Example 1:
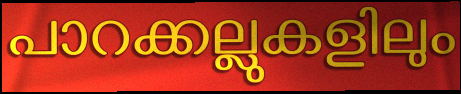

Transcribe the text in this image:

പാറക്കല്ലുകളിലും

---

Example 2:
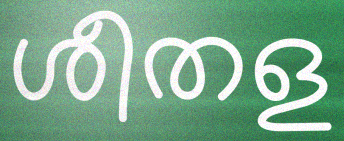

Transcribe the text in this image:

ശീതള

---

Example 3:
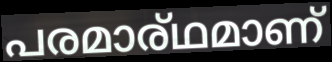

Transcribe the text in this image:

പരമാര്ഥമാണ്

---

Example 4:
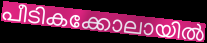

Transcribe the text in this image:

പീടികക്കോലായിൽ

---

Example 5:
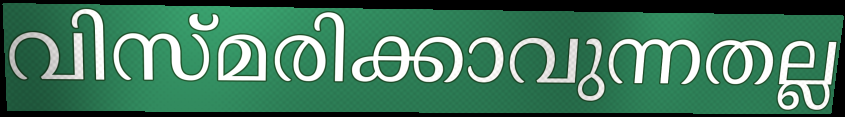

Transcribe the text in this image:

വിസ്മരിക്കാവുന്നതല്ല